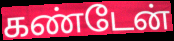
கண்டேன்